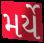
મર્યે